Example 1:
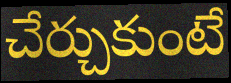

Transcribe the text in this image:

చేర్చుకుంటే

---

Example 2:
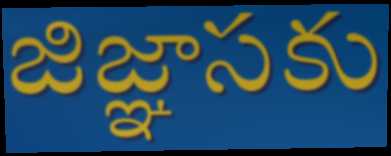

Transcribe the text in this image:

జిజ్ఞాసకు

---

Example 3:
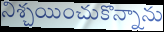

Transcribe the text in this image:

నిశ్చయించుకొన్నాను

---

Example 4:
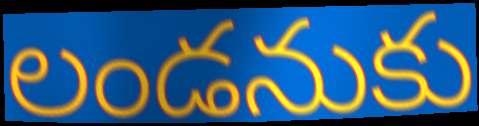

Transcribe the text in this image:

లండనుకు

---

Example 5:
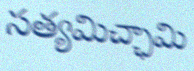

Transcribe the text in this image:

సత్యమిచ్ఛామి